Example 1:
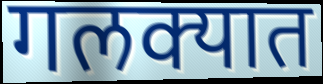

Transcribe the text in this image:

गलक्यात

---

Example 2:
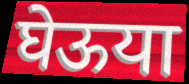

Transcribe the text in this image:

घेऊया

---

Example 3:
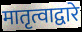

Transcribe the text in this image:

मातृत्वाद्वारे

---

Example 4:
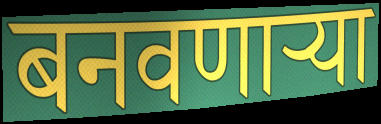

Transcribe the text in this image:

बनवणार्‍या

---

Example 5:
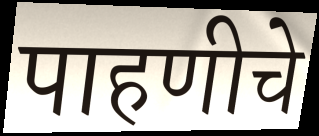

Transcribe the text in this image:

पाहणीचे